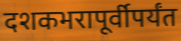
दशकभरापूर्वीपर्यंत